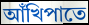
আঁখিপাতে